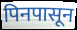
पिनपासून